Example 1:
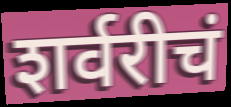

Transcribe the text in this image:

शर्वरीचं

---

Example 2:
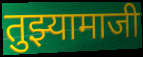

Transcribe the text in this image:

तुझ्यामाजी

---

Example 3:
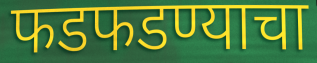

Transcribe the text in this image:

फडफडण्याचा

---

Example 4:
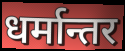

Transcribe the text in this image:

धर्मान्तर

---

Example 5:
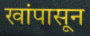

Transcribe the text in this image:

खांपासून